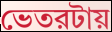
ভেতরটায়